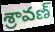
శ్రావణ్